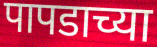
पापडाच्या